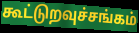
கூட்டுறவுச்சங்கம்